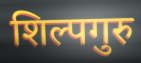
शिल्पगुरु